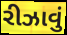
રીઝાવું